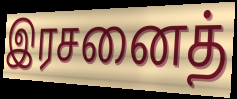
இரசனைத்